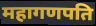
महागणपति